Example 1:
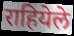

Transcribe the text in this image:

राहियेले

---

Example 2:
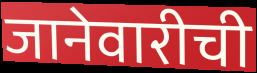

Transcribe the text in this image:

जानेवारीची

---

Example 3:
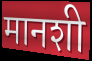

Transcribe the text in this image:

मानशी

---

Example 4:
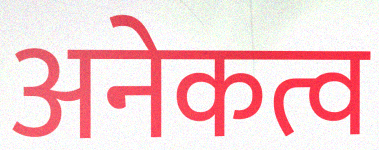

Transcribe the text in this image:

अनेकत्व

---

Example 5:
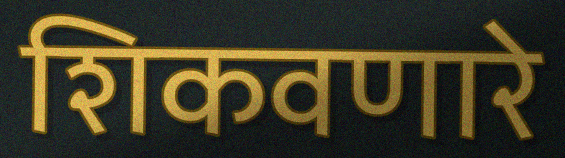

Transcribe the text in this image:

शिकवणारे